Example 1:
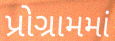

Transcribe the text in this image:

પ્રોગ્રામમાં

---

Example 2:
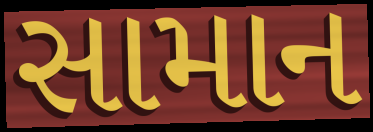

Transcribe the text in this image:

સામાન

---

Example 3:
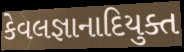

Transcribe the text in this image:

કેવલજ્ઞાનાદિયુક્ત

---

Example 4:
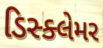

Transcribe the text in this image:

ડિસ્ક્લેમર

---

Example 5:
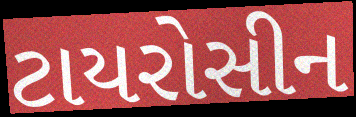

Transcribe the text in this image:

ટાયરોસીન